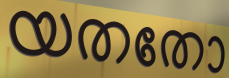
യതതോ